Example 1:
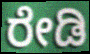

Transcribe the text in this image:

ರೇಡಿ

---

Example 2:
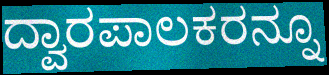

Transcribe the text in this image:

ದ್ವಾರಪಾಲಕರನ್ನೂ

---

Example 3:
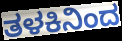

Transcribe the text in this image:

ತಳಕಿನಿಂದ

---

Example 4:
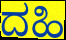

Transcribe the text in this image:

ದಹಿ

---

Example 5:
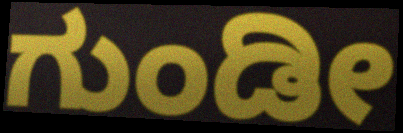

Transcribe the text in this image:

ಗುಂಡೀ